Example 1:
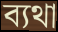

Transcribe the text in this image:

ব্যথা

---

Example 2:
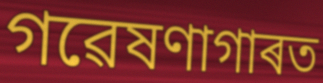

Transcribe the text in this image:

গৱেষণাগাৰত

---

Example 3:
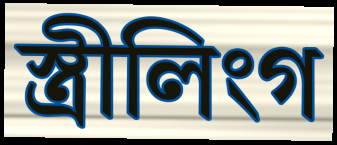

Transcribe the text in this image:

স্ত্ৰীলিংগ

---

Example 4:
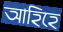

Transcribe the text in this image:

আহিহে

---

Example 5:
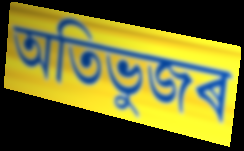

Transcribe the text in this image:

অতিভুজৰ